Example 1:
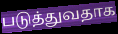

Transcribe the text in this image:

படுத்துவதாக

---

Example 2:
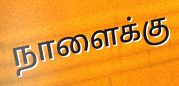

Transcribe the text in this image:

நாளைக்கு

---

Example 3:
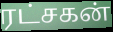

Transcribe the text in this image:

ரட்சகன்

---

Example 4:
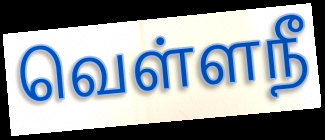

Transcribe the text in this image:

வெள்ளநீ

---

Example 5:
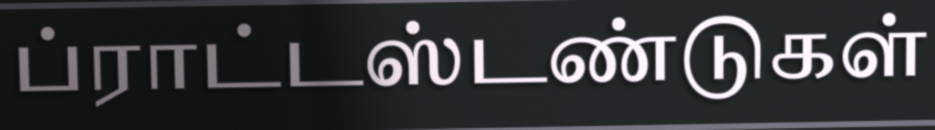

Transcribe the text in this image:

ப்ராட்டஸ்டண்டுகள்